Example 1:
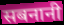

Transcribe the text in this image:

सबनानी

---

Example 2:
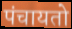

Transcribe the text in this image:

पंचायतो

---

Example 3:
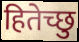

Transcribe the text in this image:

हितेच्छु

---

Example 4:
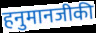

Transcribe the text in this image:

हनुमानजीकी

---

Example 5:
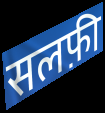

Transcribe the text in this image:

सलफ़ी